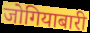
जोगियाबारी